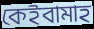
কেইবামাহ